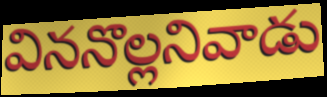
విననొల్లనివాడు